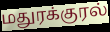
மதுரக்குரல்